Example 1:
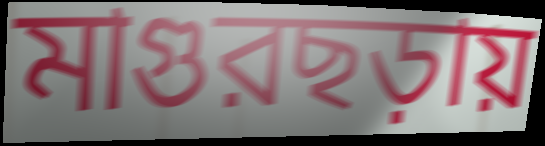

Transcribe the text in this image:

মাগুরছড়ায়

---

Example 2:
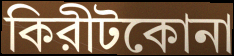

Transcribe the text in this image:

কিরীটকোনা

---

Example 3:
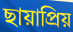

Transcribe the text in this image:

ছায়াপ্রিয়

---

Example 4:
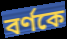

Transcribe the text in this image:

বর্ণকে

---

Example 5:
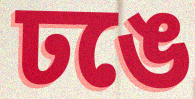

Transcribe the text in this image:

ঢঙে